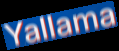
Yallama